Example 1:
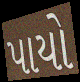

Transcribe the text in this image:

પાયો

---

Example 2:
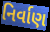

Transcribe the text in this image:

નિર્વાણ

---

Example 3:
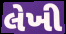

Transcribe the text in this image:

લેખી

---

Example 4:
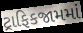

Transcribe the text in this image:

ટ્રાફિકજામમાં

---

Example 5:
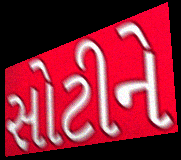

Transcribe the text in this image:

સોટીને